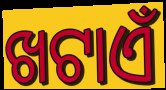
ଖଟାଏଁ